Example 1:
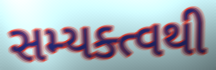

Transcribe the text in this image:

સમ્યક્ત્વથી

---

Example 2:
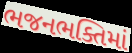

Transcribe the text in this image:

ભજનભક્તિમાં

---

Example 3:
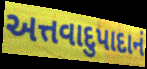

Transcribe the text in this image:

અત્તવાદુપાદાનં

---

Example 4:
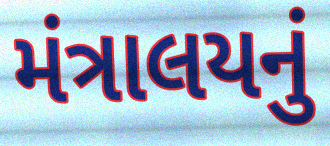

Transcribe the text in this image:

મંત્રાલયનું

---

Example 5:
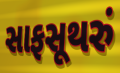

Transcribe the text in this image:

સાફસૂથરું